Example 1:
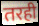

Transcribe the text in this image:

तरही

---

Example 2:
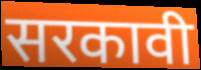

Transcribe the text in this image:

सरकावी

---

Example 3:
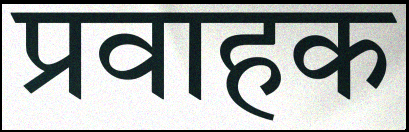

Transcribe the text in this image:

प्रवाहक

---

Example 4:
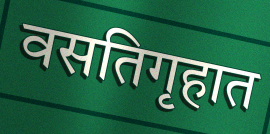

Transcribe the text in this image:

वसतिगृहात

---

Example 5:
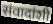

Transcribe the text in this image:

संवादांशी